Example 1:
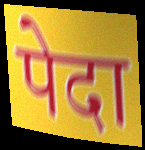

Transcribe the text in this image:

पेदा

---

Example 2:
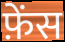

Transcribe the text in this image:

फ़ेंस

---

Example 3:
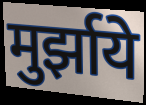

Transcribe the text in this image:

मुर्झाये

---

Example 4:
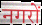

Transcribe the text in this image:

नगरों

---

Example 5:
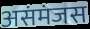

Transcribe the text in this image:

असंमंजस